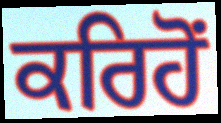
ਕਰਿਹੋਂ